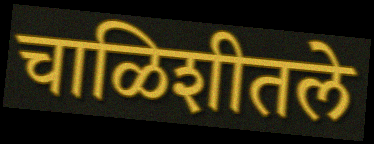
चाळिशीतले